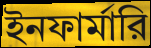
ইনফার্মারি